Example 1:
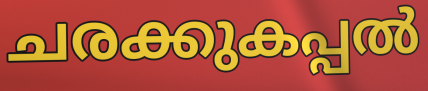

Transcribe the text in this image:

ചരക്കുകപ്പൽ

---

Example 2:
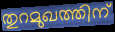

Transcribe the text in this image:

തുറമുഖത്തിന്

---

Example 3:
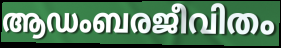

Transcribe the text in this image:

ആഡംബരജീവിതം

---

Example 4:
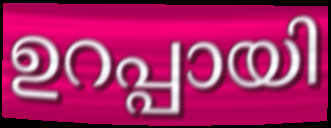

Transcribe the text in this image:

ഉറപ്പായി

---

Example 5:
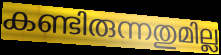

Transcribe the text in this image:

കണ്ടിരുന്നതുമില്ല